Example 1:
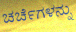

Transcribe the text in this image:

ಚರ್ಚೆಗಳನ್ನು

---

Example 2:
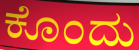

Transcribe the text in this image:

ಕೊಂದು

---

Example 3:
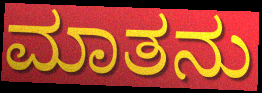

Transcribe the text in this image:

ಮಾತನು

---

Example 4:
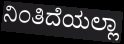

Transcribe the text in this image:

ನಿಂತಿದೆಯಲ್ಲಾ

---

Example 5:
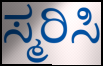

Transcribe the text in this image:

ಸ್ಮರಿಸಿ